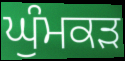
ਘੁੰਮਕੜ